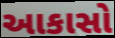
આકાસો